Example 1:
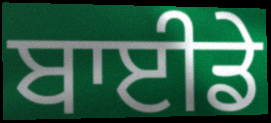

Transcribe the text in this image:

ਬਾਈਡੇ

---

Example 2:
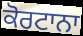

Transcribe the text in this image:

ਕੋਰਟਾਨਾ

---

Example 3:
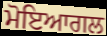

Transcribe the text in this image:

ਮੋਇਆਗਲ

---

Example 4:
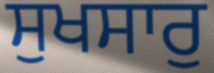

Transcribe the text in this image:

ਸੁਖਸਾਰੁ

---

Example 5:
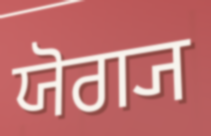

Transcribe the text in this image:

ਯੋਗ੍ਯ